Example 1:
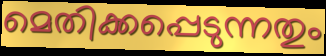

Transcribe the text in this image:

മെതിക്കപ്പെടുന്നതും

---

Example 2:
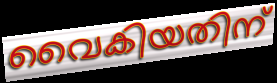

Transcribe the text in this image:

വൈകിയതിന്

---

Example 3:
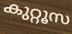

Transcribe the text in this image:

കുറ്റൂസ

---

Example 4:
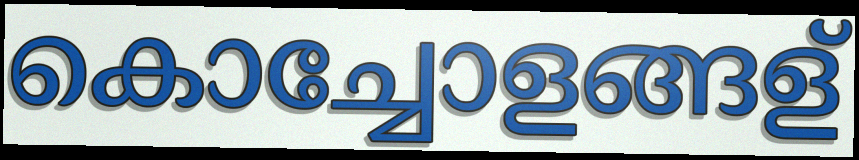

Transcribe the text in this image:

കൊച്ചോളങ്ങള്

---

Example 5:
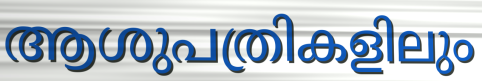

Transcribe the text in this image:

ആശുപത്രികളിലും